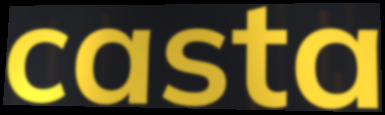
casta